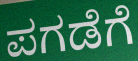
ಪಗಡೆಗೆ